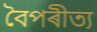
বৈপৰীত্য